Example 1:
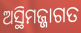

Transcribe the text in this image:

ଅସ୍ଥିମଜ୍ଜାଗତ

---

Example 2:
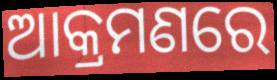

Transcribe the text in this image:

ଆକ୍ରମଣରେ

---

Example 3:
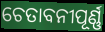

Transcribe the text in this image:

ଚେତାବନୀପୂର୍ଣ୍ଣ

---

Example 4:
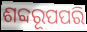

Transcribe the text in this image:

ଶବ୍ଦରୂପପରି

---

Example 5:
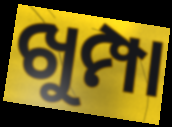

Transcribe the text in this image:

ଖୁମ୍ପା